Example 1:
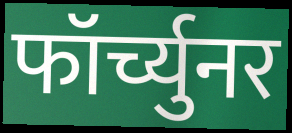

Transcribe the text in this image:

फॉर्च्युनर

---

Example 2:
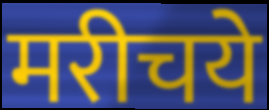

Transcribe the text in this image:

मरीचये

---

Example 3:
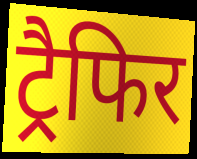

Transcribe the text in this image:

ट्रैफिर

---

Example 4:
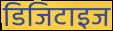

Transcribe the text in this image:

डिजिटाइज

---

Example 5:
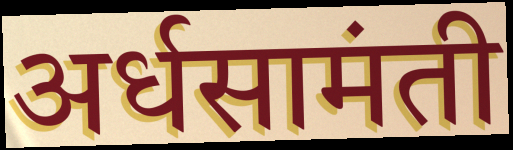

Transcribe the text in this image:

अर्धसामंती